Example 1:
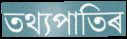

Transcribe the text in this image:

তথ্যপাতিৰ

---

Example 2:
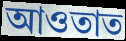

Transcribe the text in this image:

আওতাত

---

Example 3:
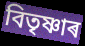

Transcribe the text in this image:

বিতৃষ্ণাৰ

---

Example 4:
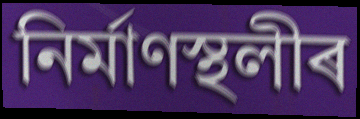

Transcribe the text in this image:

নিৰ্মাণস্থলীৰ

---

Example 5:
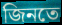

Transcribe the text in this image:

জিনতে